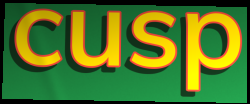
cusp